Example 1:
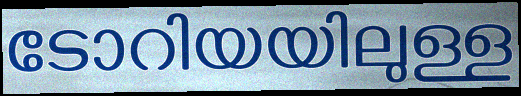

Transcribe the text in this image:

ടോറിയയിലുള്ള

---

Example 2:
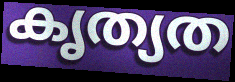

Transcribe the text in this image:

കൃത്യത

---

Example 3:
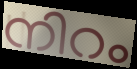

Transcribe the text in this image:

നിറം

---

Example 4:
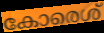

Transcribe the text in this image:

കോരെശ്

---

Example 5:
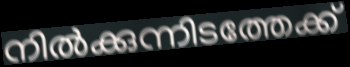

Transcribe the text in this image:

നിൽക്കുന്നിടത്തേക്ക്